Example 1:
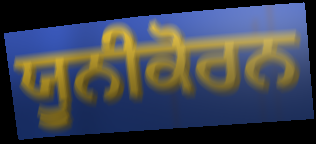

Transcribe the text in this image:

ਯੂਨੀਕੋਰਨ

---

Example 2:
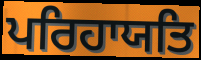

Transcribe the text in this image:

ਪਰਿਹਾਯਤਿ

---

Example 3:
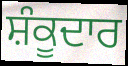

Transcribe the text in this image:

ਸ਼ੰਕੂਦਾਰ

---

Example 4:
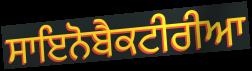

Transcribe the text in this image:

ਸਾਇਨੋਬੈਕਟੀਰੀਆ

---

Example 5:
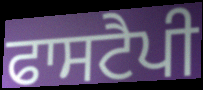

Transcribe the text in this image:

ਫਾਸਟੈਪੀ